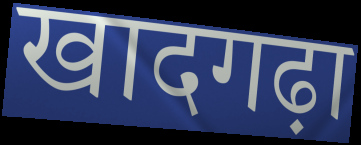
खादगढ़ा